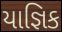
યાજ્ઞિક